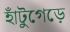
হাঁটুগেড়ে